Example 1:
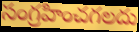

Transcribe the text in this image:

సంగ్రహించగలదు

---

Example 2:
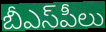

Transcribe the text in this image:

బీఎస్‌పీలు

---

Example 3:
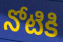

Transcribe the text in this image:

నోటికి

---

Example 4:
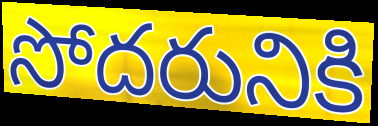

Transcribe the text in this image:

సోదరునికి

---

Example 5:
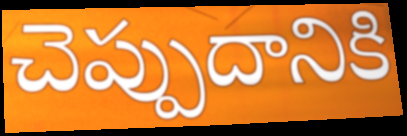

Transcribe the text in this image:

చెప్పుదానికి